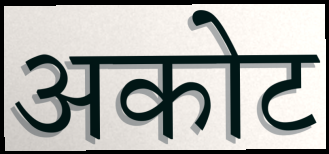
अकोट